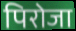
पिरोजा